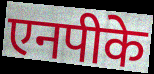
एनपीके